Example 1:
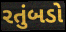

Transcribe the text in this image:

રતુંબડો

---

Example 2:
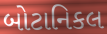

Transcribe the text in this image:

બોટાનિકલ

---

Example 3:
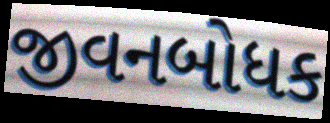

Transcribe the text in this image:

જીવનબોધક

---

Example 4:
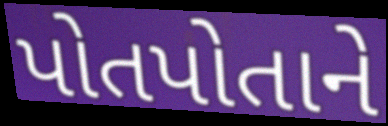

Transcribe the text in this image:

પોતપોતાને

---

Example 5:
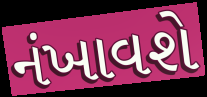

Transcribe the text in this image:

નંખાવશે